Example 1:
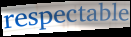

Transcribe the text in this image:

respectable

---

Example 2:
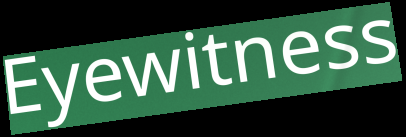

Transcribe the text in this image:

Eyewitness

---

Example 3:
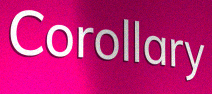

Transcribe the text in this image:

Corollary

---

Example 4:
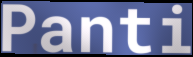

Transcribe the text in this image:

Panti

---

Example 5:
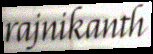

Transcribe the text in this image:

rajnikanth